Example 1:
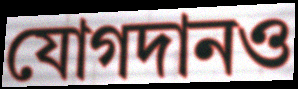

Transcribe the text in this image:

যোগদানও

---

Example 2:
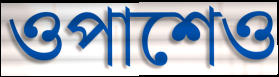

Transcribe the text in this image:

ওপাশেও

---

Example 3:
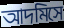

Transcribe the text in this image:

আদমিসে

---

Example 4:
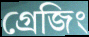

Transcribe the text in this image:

গ্রেজিং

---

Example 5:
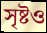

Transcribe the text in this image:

সৃষ্টও